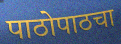
पाठोपाठचा